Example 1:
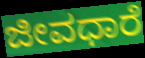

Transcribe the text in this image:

ಜೀವಧಾರೆ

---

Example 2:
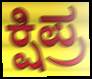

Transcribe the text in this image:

ಕ್ಷಿಪ್ರ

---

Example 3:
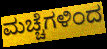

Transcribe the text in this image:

ಮಚ್ಚೆಗಳಿಂದ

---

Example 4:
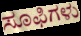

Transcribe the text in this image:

ಸೂಫಿಗಳು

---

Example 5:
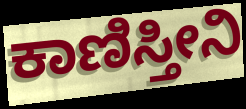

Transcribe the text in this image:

ಕಾಣಿಸ್ತೀನಿ